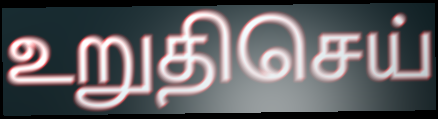
உறுதிசெய்